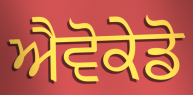
ਐਵੋਕੇਡੋ